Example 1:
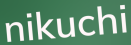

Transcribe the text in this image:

nikuchi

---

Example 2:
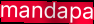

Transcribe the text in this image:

mandapa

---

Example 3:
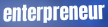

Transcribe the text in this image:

enterpreneur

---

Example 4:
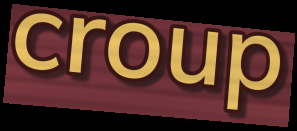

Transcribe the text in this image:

croup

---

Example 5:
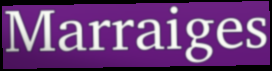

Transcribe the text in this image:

Marraiges